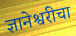
ज्ञानेश्वरीचा